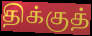
திக்குத்